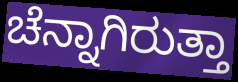
ಚೆನ್ನಾಗಿರುತ್ತಾ